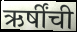
ऋर्षींची